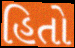
હિતો